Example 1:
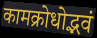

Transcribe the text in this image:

कामक्रोधोद्भवं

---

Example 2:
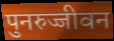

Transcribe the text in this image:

पुनरुज्जीवन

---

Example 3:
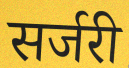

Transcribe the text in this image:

सर्जरी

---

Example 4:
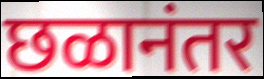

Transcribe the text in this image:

छळानंतर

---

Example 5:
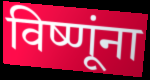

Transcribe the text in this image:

विष्णूंना